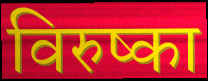
विरुष्का